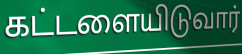
கட்டளையிடுவார்